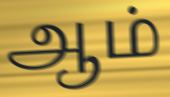
ஆம்